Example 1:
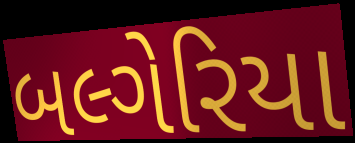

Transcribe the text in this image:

બલ્ગેરિયા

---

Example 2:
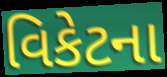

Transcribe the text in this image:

વિકેટના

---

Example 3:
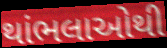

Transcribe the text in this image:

થાંભલાઓથી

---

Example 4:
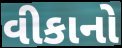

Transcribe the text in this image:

વીકાનો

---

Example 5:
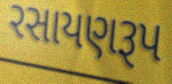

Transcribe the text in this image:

રસાયણરૂપ